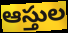
ఆస్తుల